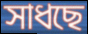
সাধছে